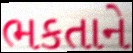
ભકતાને